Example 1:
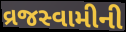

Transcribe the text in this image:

વ્રજસ્વામીની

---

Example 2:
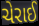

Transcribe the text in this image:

ચેરાઈ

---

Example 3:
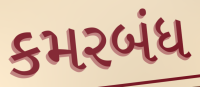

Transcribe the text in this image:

કમરબંધ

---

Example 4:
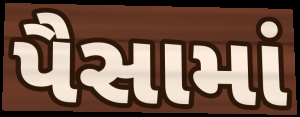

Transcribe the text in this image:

પૈસામાં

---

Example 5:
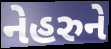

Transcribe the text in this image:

નેહરુને